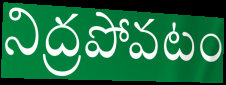
నిద్రపోవటం